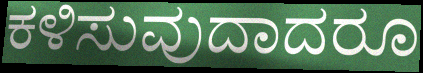
ಕಳಿಸುವುದಾದರೂ